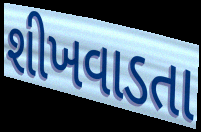
શીખવાડતા